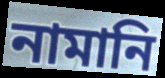
নামানি